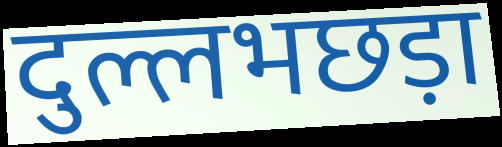
दुल्लभछड़ा